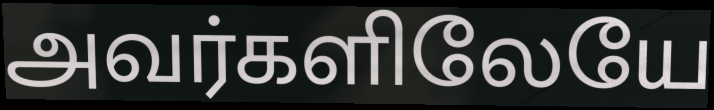
அவர்களிலேயே